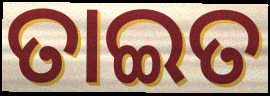
ତାଇତ